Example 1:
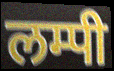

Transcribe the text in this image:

लम्पी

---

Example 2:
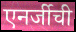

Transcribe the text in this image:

एनर्जीची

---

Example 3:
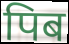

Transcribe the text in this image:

पिब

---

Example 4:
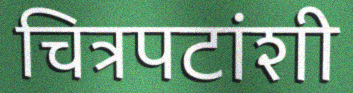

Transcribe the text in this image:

चित्रपटांशी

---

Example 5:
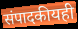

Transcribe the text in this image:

संपादकीयही